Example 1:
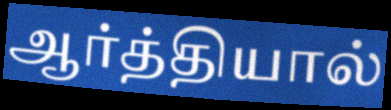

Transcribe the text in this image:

ஆர்த்தியால்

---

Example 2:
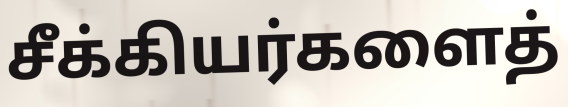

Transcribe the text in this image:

சீக்கியர்களைத்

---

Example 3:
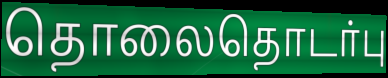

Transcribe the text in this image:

தொலைதொடர்பு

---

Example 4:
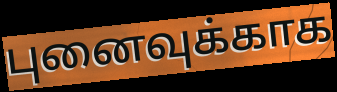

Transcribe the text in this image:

புனைவுக்காக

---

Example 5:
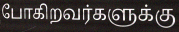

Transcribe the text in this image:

போகிறவர்களுக்கு